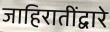
जाहिरातींद्वारे